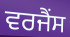
ਵਰਜੈਂਸ